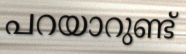
പറയാറുണ്ട്